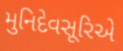
મુનિદેવસૂરિએ